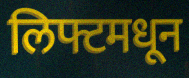
लिफ्टमधून